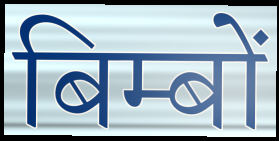
बिम्बों